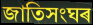
জাতিসংঘৰ